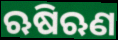
ଋଷିଋଣ